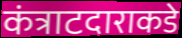
कंत्राटदाराकडे